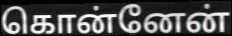
கொன்னேன்